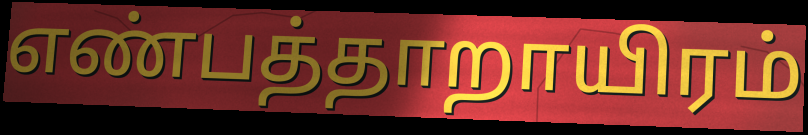
எண்பத்தாறாயிரம்